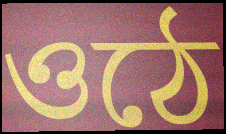
ওঠে